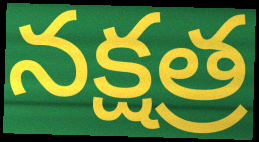
నక్షత్ర